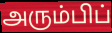
அரும்பிப்